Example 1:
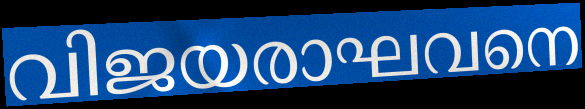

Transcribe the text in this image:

വിജയരാഘവനെ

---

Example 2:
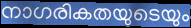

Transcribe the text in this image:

നാഗരികതയുടെയും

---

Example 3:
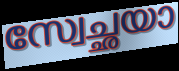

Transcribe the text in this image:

സ്വേച്ഛയാ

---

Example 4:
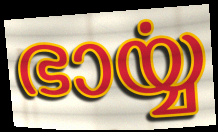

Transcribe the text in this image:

ഭാൎയ്യ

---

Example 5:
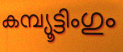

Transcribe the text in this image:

കമ്പ്യൂട്ടിംഗും